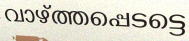
വാഴ്ത്തപ്പെടട്ടെ